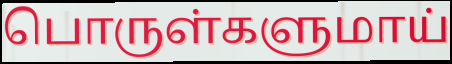
பொருள்களுமாய்